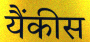
यैंकीस